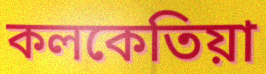
কলকেতিয়া